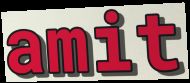
amit